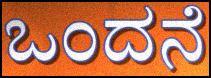
ಒಂದನೆ